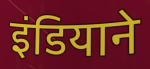
इंडियाने